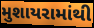
મુશાયરામાંથી